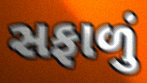
સફાળું